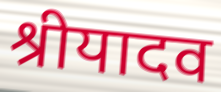
श्रीयादव